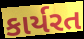
કાર્યરત